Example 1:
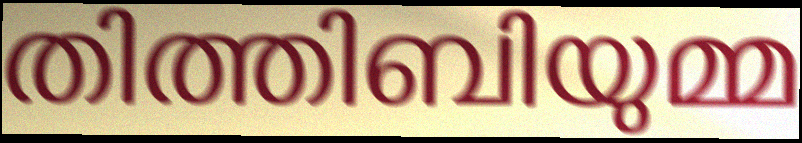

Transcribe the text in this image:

തിത്തിബിയുമ്മ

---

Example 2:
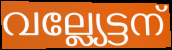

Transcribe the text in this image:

വല്ല്യേട്ടന്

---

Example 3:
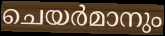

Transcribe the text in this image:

ചെയർമാനും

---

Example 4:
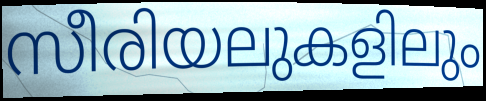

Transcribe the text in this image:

സീരിയലുകളിലും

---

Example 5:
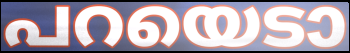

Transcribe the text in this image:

പറയെടാ